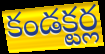
కండక్టర్ల